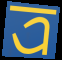
ত্র